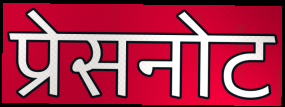
प्रेसनोट